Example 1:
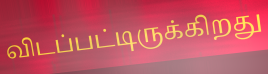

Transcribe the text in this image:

விடப்பட்டிருக்கிறது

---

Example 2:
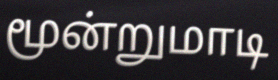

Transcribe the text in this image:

மூன்றுமாடி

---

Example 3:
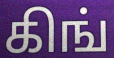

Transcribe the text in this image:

கிங்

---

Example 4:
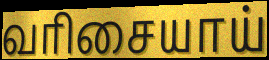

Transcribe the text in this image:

வரிசையாய்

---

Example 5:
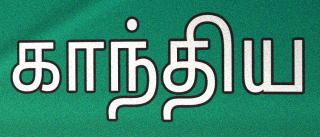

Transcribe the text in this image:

காந்திய